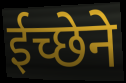
ईच्छेने